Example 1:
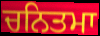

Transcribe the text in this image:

ਚਨਿਤਮਾ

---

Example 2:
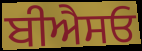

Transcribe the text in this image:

ਬੀਐਸਓ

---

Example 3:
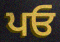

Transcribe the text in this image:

ਪਓ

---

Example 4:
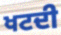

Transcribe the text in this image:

ਖਟਦੀ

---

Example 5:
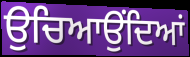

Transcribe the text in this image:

ਉਚਿਆਉਂਦਿਆਂ